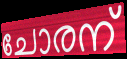
ചോരന്